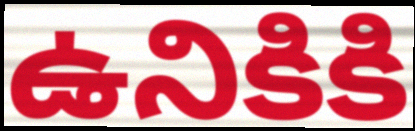
ఉనికికి